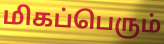
மிகப்பெரும்